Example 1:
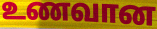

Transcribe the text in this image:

உணவான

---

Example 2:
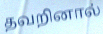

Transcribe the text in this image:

தவறினால்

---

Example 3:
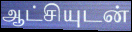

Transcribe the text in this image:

ஆட்சியுடன்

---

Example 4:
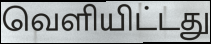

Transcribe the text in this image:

வெளியிட்டது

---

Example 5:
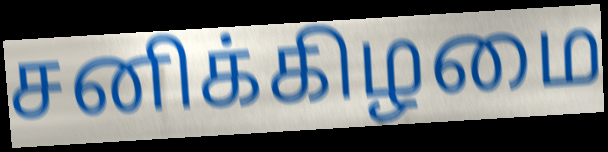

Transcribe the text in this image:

சனிக்கிழமை